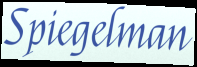
Spiegelman